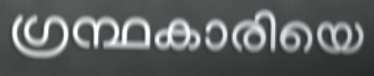
ഗ്രന്ഥകാരിയെ